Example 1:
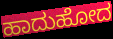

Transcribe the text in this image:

ಹಾದುಹೋದ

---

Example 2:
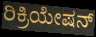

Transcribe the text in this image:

ರಿಕ್ರಿಯೇಷನ್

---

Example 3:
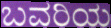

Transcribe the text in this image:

ಬವರಿಯ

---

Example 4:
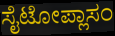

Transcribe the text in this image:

ಸೈಟೋಪ್ಲಾಸಂ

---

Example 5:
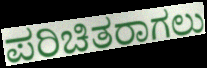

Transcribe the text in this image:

ಪರಿಚಿತರಾಗಲು